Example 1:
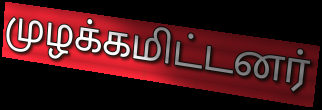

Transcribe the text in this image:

முழக்கமிட்டனர்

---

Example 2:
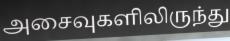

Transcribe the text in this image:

அசைவுகளிலிருந்து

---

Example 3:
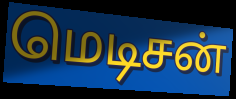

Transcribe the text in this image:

மெடிசன்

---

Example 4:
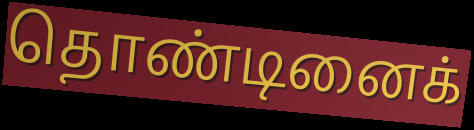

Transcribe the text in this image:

தொண்டினைக்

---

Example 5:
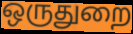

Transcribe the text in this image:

ஒருதுறை